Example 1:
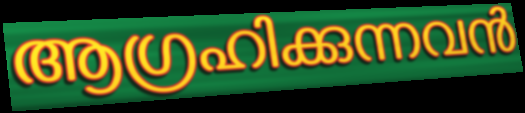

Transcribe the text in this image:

ആഗ്രഹിക്കുന്നവൻ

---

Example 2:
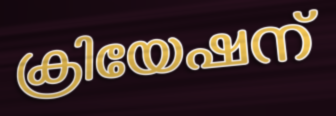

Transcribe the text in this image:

ക്രിയേഷന്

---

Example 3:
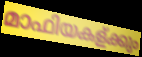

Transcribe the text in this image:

മാഫിയകള്ക്കും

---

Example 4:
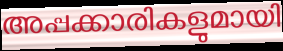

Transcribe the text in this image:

അപ്പക്കാരികളുമായി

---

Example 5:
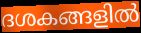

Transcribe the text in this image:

ദശകങ്ങളിൽ